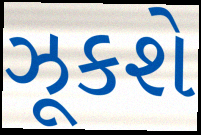
ઝૂકશે